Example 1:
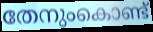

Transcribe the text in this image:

തേനുംകൊണ്ട്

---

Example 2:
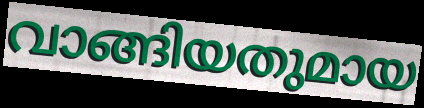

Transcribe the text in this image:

വാങ്ങിയതുമായ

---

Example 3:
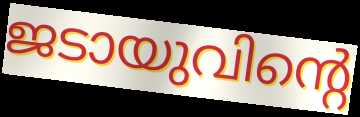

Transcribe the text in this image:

ജടായുവിന്റെ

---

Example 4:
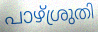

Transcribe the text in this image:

പാഴ്ശ്രുതി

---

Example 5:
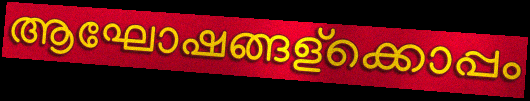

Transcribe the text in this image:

ആഘോഷങ്ങള്ക്കൊപ്പം